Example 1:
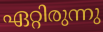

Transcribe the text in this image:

ഏറ്റിരുന്നു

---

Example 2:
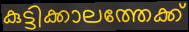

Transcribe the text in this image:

കുട്ടിക്കാലത്തേക്ക്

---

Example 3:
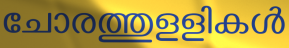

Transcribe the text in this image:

ചോരത്തുളളികൾ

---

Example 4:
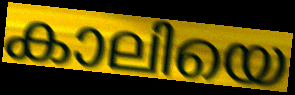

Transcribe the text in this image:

കാലിയെ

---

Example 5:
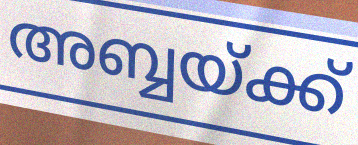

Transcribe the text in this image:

അബ്ബയ്ക്ക്